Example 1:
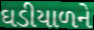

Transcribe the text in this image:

ઘડીયાળને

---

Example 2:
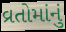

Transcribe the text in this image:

વ્રતોમાંનું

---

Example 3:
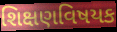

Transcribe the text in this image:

શિક્ષણવિષયક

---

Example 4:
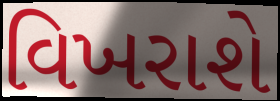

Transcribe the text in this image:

વિખરાશે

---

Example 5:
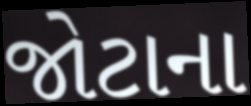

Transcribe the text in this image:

જોટાના